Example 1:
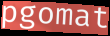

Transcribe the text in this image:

pgomat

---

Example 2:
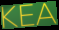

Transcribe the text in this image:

KEA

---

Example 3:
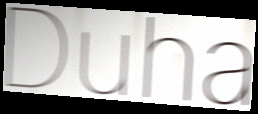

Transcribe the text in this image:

Duha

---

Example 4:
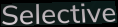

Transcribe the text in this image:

Selective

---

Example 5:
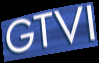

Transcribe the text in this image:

GTVI